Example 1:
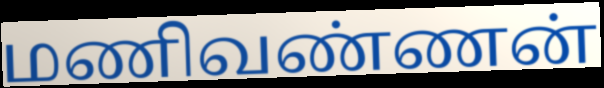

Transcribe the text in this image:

மணிவண்ணன்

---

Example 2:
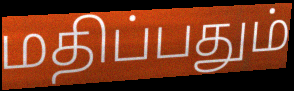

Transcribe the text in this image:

மதிப்பதும்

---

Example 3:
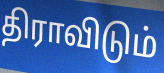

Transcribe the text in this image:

திராவிடும்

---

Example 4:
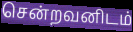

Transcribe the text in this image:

சென்றவனிடம்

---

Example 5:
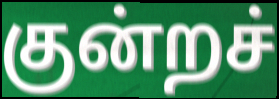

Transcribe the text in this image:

குன்றச்